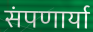
संपणार्या